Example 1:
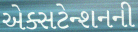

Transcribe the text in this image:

એક્સટેન્શનની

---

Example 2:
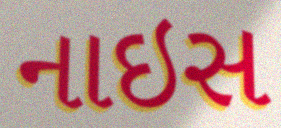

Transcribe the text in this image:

નાઇસ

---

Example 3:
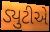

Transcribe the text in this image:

ડ્યુટીએ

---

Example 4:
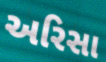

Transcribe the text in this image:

અરિસા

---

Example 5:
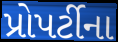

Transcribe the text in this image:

પ્રોપર્ટીના